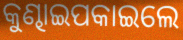
କୁଣ୍ଢାଇପକାଇଲେ